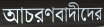
আচরণবাদীদের